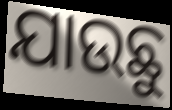
ଯାଉଛୁ